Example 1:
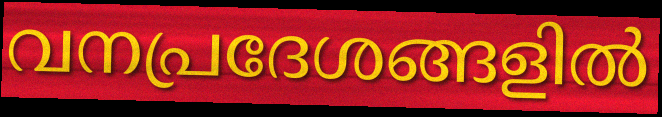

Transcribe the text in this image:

വനപ്രദേശങ്ങളിൽ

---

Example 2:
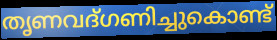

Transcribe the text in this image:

തൃണവദ്ഗണിച്ചുകൊണ്ട്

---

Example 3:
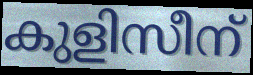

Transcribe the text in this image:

കുളിസീന്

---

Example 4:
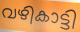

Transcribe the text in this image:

വഴികാട്ടി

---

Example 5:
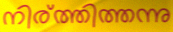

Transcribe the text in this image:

നിര്ത്തിത്തന്നു